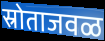
स्रोताजवळ